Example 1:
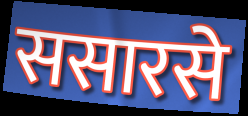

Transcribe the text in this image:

ससारसे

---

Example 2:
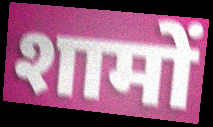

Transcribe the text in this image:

शामों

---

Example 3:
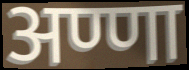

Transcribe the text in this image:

अण्णा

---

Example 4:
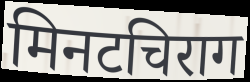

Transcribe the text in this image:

मिनटचिराग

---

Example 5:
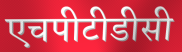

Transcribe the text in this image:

एचपीटीडीसी